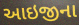
આઇજીના